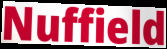
Nuffield